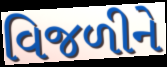
વિજળીને